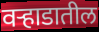
वर्‍हाडातील